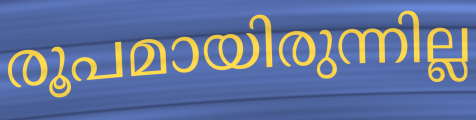
രൂപമായിരുന്നില്ല